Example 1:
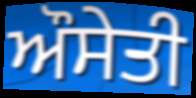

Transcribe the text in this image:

ਔਸੇਤੀ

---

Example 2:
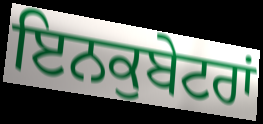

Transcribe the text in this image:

ਇਨਕੁਬੇਟਰਾਂ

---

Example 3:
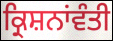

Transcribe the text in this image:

ਕ੍ਰਿਸ਼ਨਾਂਵੰਤੀ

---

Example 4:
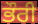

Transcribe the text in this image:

ਭੌਰੀ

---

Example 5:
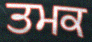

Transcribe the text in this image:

ਤਮਕ